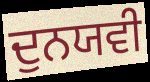
ਦੁਨਯਵੀ